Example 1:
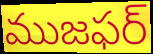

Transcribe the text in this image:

ముజఫర్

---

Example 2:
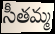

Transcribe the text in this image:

సీతమ్మ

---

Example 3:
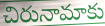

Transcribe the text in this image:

చిరునామాకు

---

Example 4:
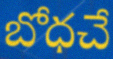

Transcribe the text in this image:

బోధచే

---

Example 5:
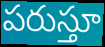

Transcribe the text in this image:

పరుస్తూ